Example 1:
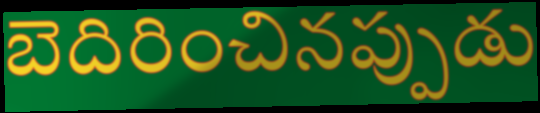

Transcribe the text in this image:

బెదిరించినప్పుడు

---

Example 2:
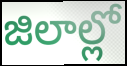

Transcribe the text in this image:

జిలాల్లో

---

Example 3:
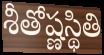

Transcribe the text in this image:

శీతోష్ణస్థితి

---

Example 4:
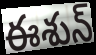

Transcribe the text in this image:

ఈశున్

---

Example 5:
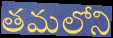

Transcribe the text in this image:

తమలోని